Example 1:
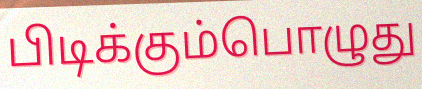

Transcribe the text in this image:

பிடிக்கும்பொழுது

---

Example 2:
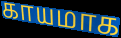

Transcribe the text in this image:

காயமாக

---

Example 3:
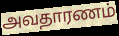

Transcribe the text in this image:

அவதாரணம்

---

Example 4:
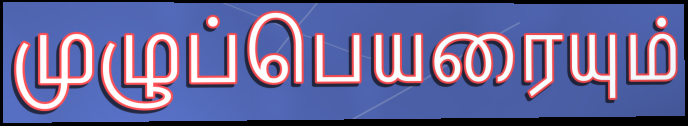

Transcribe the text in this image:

முழுப்பெயரையும்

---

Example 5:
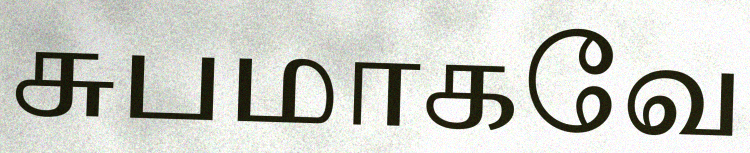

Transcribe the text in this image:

சுபமாகவே